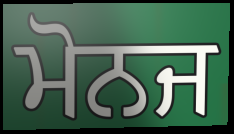
ਮੋਨਜ